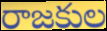
రాజకుల